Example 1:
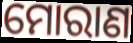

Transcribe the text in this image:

ମୋରାଣ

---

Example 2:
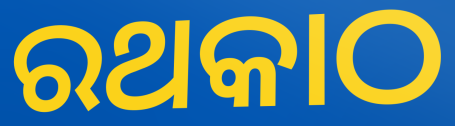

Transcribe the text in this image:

ରଥକାଠ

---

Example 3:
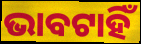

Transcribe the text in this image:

ଭାବଟାହିଁ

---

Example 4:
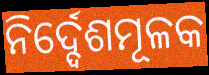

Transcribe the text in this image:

ନିର୍ଦ୍ଦେଶମୂଳକ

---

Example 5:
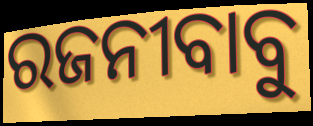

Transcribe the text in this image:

ରଜନୀବାବୁ